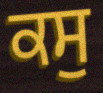
ਕਸੁ